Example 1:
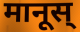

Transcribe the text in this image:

मानूस्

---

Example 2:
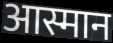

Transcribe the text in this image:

आस्मान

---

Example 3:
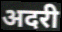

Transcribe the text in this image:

अदरी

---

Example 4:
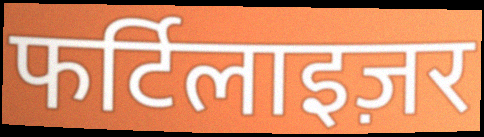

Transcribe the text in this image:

फर्टिलाइज़र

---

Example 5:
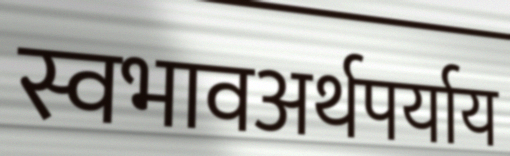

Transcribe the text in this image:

स्वभावअर्थपर्याय